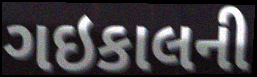
ગઇકાલની